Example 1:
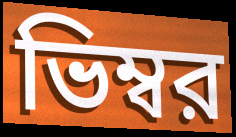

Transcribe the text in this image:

ভিম্বর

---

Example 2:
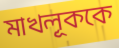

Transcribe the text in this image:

মাখলূককে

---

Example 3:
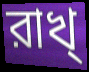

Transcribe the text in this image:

রাখ্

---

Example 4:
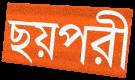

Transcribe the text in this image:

ছয়পরী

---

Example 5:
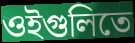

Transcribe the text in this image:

ওইগুলিতে